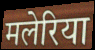
मलेरिया